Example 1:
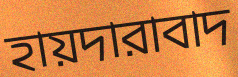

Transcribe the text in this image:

হায়দারাবাদ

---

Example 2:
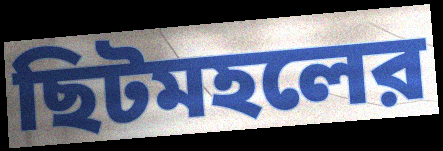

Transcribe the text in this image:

ছিটমহলের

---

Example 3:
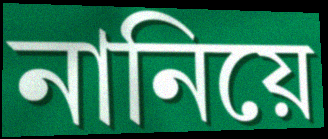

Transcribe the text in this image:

নানিয়ে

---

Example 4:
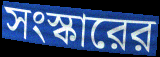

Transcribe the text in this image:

সংস্কারের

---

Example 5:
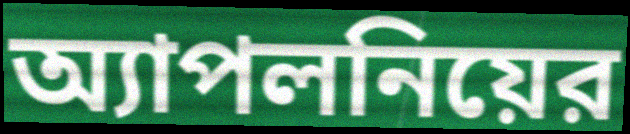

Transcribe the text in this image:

অ্যাপলনিয়ের